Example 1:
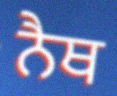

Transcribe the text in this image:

ਨੈਥ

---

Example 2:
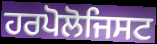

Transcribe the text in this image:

ਹਰਪੋਲੋਜਿਸਟ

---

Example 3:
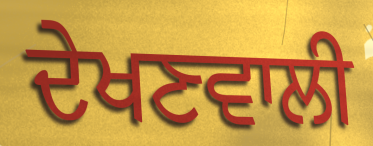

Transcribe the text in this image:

ਦੇਖਣਵਾਲੀ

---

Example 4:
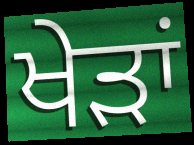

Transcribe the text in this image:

ਖੇੜਾਂ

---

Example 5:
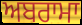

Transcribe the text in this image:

ਅਬਰਾਮਾ